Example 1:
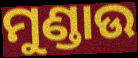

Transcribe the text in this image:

ମୁଣ୍ଡାଉ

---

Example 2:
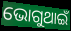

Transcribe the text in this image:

ଭୋଗୁଥାଇଁ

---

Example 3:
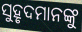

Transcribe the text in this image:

ସୁହୃଦମାନଙ୍କୁ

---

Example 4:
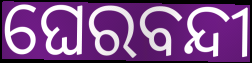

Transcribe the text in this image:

ଘେରବନ୍ଦୀ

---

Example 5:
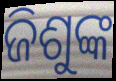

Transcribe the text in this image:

ଜିଶୁଙ୍କ